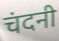
चंदनी